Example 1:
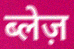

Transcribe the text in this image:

ब्लेज़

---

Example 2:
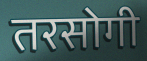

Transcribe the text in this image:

तरसोगी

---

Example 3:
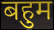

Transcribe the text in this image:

बहुम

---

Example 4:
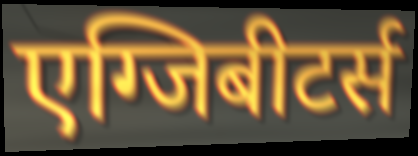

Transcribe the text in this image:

एग्जिबीटर्स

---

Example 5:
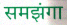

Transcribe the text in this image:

समझंगा